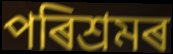
পৰিশ্ৰমৰ